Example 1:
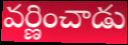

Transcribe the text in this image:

వర్ణించాడు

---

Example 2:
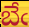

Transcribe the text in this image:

బేఁ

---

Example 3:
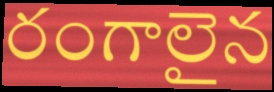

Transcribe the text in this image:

రంగాలైన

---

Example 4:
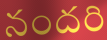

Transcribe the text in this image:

నందరి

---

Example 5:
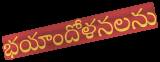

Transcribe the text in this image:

భయాందోళనలను